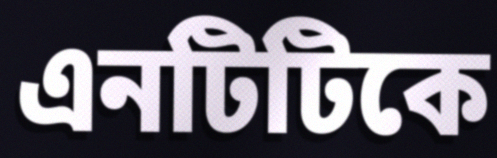
এনটিটিকে